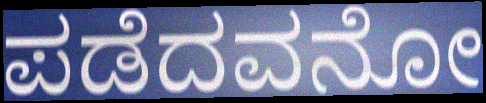
ಪಡೆದವನೋ